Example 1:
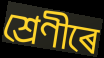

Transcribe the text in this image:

শ্ৰেণীৰে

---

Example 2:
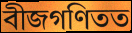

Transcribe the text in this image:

বীজগণিতত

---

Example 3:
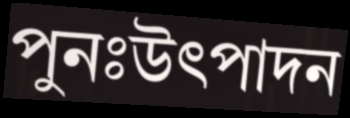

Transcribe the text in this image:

পুনঃউৎপাদন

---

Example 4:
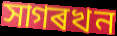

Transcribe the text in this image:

সাগৰখন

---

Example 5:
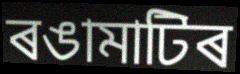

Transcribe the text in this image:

ৰঙামাটিৰ